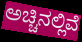
ಅಚ್ಚಿನಲ್ಲಿವೆ